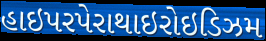
હાઇપરપેરાથાઇરોઇડિઝમ